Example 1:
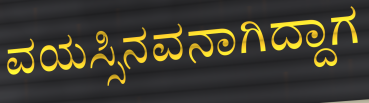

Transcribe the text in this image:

ವಯಸ್ಸಿನವನಾಗಿದ್ದಾಗ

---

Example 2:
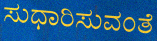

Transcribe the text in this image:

ಸುಧಾರಿಸುವಂತೆ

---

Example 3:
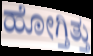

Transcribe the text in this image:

ಹೋಗ್ತಿತ್ತು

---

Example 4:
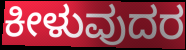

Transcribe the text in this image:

ಕೀಳುವುದರ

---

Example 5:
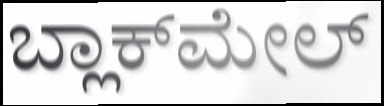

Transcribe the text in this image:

ಬ್ಲಾಕ್‌ಮೇಲ್